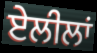
ਏਲੀਲਾਂ